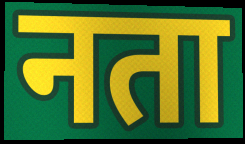
नता